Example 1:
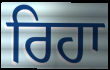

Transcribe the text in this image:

ਰਿਹਾ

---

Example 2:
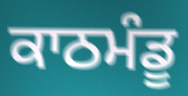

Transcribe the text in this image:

ਕਾਠਮੰਡੂ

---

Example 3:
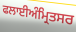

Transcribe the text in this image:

ਫਲਾਈਅੰਮ੍ਰਿਤਸਰ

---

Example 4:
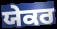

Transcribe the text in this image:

ਯੇਕਰ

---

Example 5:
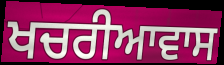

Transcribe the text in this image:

ਖਚਰੀਆਵਾਸ